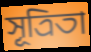
সূত্রিতা